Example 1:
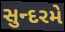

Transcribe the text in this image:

સુન્દરમે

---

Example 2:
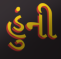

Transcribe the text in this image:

હુંની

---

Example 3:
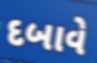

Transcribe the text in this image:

દબાવે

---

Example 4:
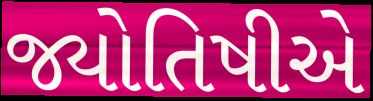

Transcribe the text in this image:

જ્યોતિષીએ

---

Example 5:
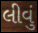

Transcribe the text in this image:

લીવું